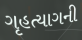
ગૃહત્યાગની